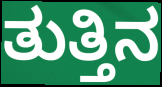
ತುತ್ತಿನ